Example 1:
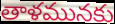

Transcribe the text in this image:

తాళమునకు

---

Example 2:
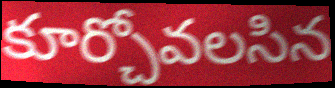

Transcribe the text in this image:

కూర్చోవలసిన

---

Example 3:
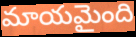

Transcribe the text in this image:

మాయమైంది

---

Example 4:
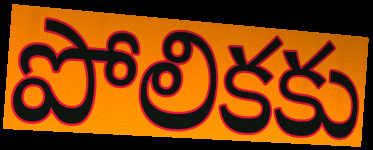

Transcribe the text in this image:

పోలికకు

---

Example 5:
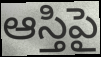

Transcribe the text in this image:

ఆస్తిపై